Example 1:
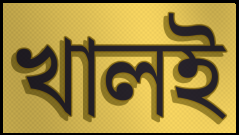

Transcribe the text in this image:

খালই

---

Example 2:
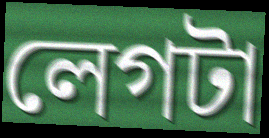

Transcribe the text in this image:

লেগটা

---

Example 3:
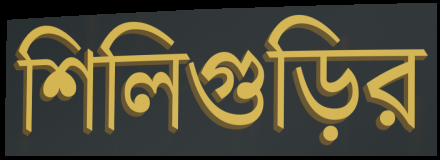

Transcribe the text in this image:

শিলিগুড়ির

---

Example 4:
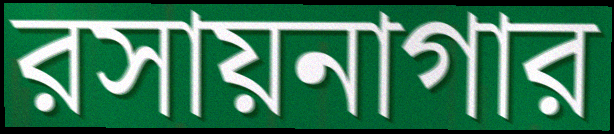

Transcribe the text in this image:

রসায়নাগার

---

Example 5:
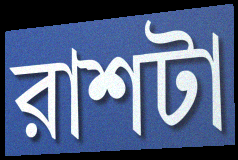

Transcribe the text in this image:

রাশটা